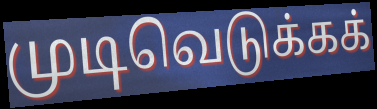
முடிவெடுக்கக்